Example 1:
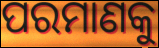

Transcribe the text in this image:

ପରମାଣକୁ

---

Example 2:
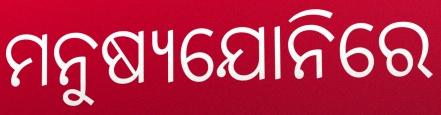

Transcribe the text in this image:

ମନୁଷ୍ୟଯୋନିରେ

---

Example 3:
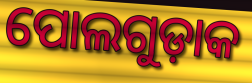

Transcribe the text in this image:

ପୋଲଗୁଡ଼ାକ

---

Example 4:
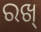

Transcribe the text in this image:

ରଖ୍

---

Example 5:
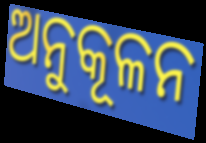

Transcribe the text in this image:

ଅନୁକୂଳନ